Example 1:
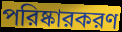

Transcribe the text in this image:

পরিষ্কারকরণ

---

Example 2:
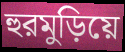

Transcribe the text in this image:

হুরমুড়িয়ে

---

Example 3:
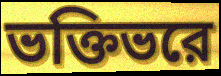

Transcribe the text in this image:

ভক্তিভরে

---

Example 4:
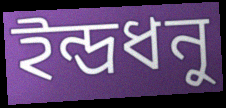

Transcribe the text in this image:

ইন্দ্রধনু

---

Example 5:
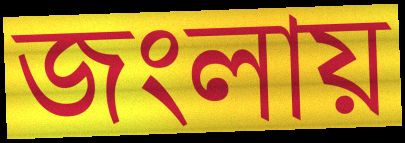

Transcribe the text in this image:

জংলায়